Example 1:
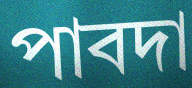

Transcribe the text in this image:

পাবদা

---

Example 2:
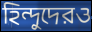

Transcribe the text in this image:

হিন্দুদেরও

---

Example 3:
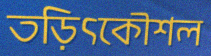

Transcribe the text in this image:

তড়িৎকৌশল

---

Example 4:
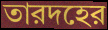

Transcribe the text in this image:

তারদহের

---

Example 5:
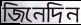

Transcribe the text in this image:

জিনেদিন